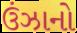
ઉંઝાનો